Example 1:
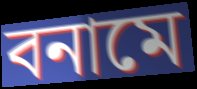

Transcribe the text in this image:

বনামে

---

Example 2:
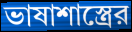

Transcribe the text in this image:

ভাষাশাস্ত্রের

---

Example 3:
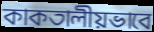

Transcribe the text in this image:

কাকতালীয়ভাবে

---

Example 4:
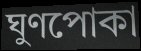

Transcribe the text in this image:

ঘুণপোকা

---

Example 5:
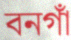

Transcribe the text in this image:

বনগাঁ